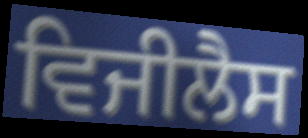
ਵਿਜੀਲੈਸ